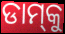
ଡାମ୍‍କୁ